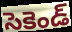
సెకెండ్